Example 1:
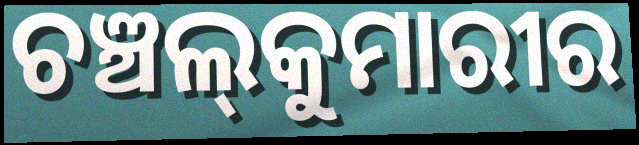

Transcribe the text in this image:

ଚଞ୍ଚଲ୍‍କୁମାରୀର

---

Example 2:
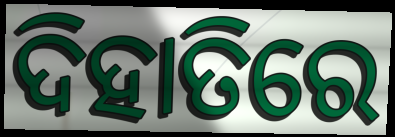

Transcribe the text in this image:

ଦିହାତିରେ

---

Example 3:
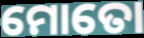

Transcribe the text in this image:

ମୋତୋ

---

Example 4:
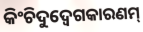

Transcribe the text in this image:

କିଂଚିଦୁଦ୍ବେଗକାରଣମ୍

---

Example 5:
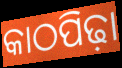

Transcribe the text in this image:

କାଠପିଢ଼ା